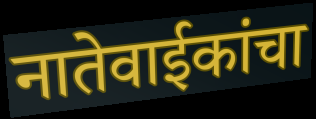
नातेवाईकांचा